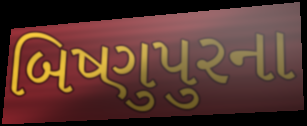
બિષ્ણુપુરના